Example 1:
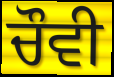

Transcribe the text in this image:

ਚੌਵੀ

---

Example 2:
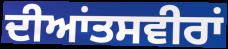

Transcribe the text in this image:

ਦੀਆਂਤਸਵੀਰਾਂ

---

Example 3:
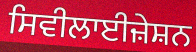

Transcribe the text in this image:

ਸਿਵੀਲਾਈਜ਼ੇਸ਼ਨ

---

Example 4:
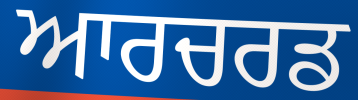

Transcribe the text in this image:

ਆਰਚਰਡ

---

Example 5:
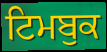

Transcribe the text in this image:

ਟਿਮਬੁਕ